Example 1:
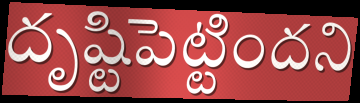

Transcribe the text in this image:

దృష్టిపెట్టిందని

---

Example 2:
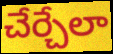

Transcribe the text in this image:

చేర్చేలా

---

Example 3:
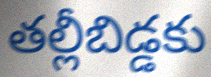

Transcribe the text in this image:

తల్లీబిడ్డకు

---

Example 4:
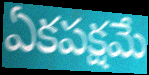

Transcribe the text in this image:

ఏకపక్షమే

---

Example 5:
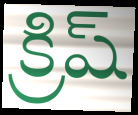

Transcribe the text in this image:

క్రిష్